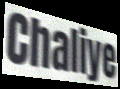
Chaliye